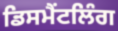
ਡਿਸਮੈਂਟਲਿੰਗ